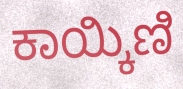
ಕಾಯ್ಕಿಣಿ